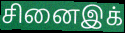
சினைஇக்